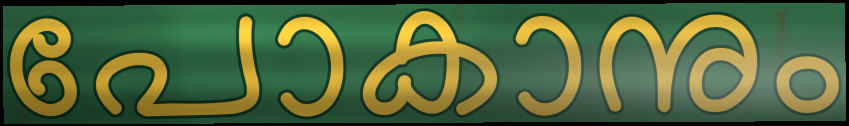
പോകാനും